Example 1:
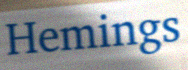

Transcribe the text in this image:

Hemings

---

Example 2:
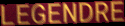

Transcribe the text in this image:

LEGENDRE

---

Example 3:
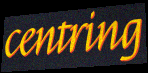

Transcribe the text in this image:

centring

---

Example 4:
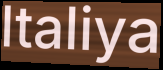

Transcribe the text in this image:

Italiya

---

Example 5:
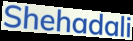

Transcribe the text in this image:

Shehadali